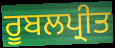
ਰੂਬਲਪ੍ਰੀਤ